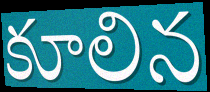
కూలిన